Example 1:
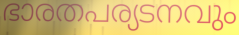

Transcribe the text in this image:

ഭാരതപര്യടനവും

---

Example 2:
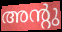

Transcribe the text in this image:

അന്റു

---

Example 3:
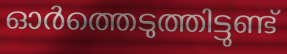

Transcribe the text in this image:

ഓർത്തെടുത്തിട്ടുണ്ട്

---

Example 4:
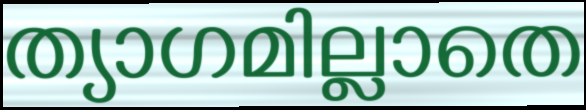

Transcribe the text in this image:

ത്യാഗമില്ലാതെ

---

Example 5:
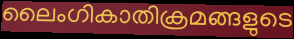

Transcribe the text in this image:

ലൈംഗികാതിക്രമങ്ങളുടെ